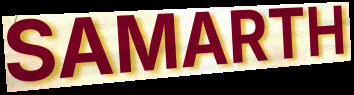
SAMARTH